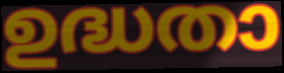
ഉദ്ധതാ